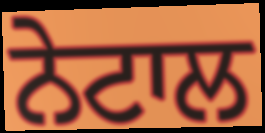
ਨੇਟਾਲ